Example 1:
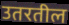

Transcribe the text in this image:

उतरतील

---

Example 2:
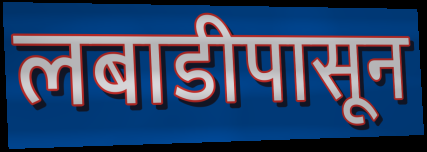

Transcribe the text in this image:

लबाडीपासून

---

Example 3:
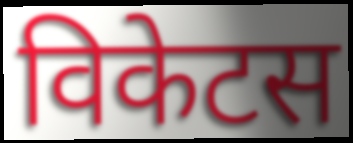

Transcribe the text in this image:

विकेटस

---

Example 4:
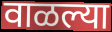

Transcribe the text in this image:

वाळल्या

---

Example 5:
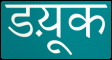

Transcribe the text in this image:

डय़ूक